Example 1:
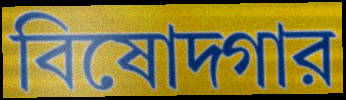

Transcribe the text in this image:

বিষোদ্গার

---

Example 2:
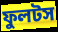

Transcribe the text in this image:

ফুলটস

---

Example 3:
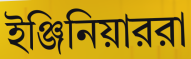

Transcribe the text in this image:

ইঞ্জিনিয়াররা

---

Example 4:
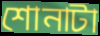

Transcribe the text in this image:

শোনাটা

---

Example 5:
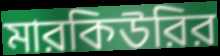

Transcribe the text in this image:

মারকিউরির